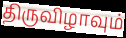
திருவிழாவும்